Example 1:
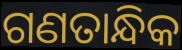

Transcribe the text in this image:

ଗଣତାନ୍ଧିକ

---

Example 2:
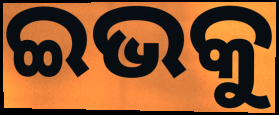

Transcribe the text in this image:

ଇଭକୁ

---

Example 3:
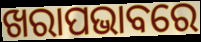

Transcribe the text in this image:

ଖରାପଭାବରେ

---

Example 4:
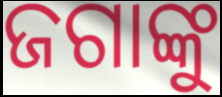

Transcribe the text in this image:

ଜଗାଙ୍କୁ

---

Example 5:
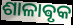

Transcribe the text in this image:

ଶାଳାଵୃକ